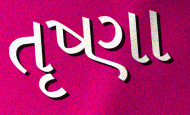
તૃષ્ણા